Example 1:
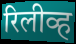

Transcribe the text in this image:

रिलीव्ह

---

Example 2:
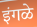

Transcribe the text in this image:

इंगळे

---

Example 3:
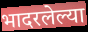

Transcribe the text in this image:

भादरलेल्या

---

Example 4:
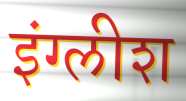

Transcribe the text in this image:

इंग्लीश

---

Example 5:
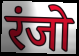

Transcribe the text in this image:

रंजो